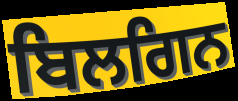
ਬਿਲਗਿਨ